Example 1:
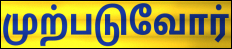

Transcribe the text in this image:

முற்படுவோர்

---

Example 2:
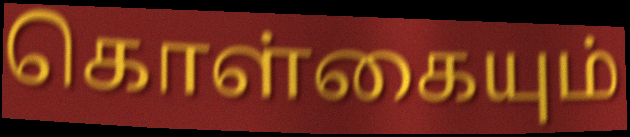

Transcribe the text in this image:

கொள்கையும்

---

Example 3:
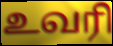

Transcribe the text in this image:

உவரி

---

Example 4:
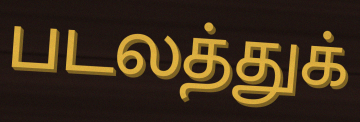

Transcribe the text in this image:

படலத்துக்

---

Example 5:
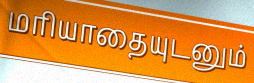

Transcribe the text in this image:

மரியாதையுடனும்